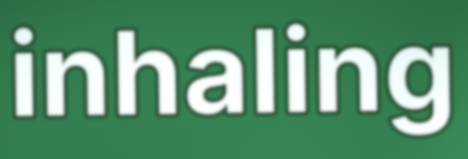
inhaling